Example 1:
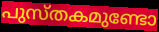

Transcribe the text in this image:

പുസ്തകമുണ്ടോ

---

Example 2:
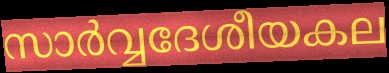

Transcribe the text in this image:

സാർവ്വദേശീയകല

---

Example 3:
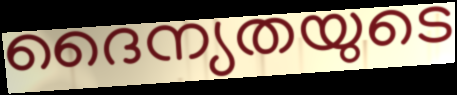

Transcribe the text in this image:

ദൈന്യതയുടെ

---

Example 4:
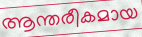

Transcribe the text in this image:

ആന്തരീകമായ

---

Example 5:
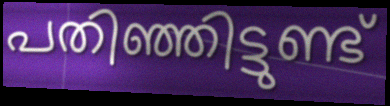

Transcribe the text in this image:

പതിഞ്ഞിട്ടുണ്ട്